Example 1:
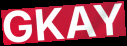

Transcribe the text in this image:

GKAY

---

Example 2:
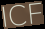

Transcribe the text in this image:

ICF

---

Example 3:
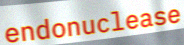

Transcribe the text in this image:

endonuclease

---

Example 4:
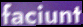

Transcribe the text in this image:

faciunt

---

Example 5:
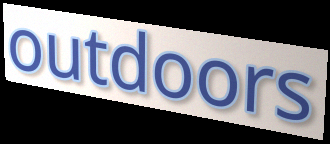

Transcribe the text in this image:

outdoors